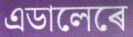
এডালেৰে